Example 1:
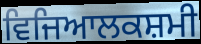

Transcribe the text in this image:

ਵਿਜਿਆਲਕਸ਼ਮੀ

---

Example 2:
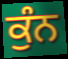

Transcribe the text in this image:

ਕੁੰਨ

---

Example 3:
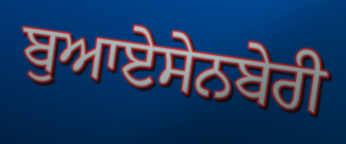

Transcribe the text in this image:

ਬੁਆਏਸੇਨਬੇਰੀ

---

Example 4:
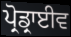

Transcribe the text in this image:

ਪ੍ਰੋਡ੍ਰਾਈਵ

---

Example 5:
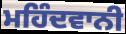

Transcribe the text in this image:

ਮਹਿੰਦਵਾਨੀ